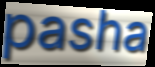
pasha